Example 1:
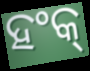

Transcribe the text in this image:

ହଂକ୍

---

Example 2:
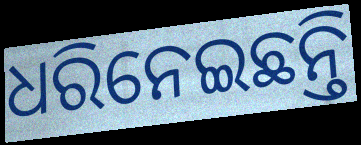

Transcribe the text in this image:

ଧରିନେଇଛନ୍ତି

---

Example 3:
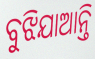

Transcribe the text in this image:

ବୁଝିଯାଆନ୍ତି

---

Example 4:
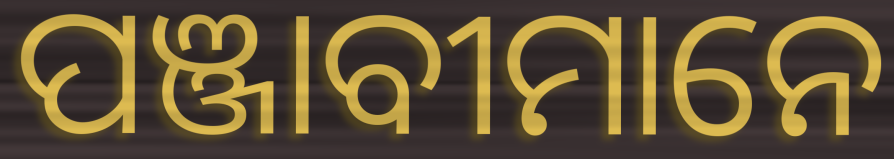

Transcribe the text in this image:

ପଞ୍ଜାବୀମାନେ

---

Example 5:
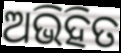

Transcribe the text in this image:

ଅଭିହିତ